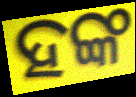
ହଙ୍କ